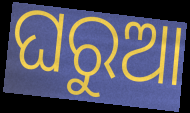
ଘରୁଆ